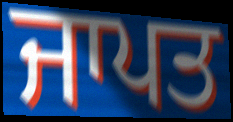
ਜਾਪਤ